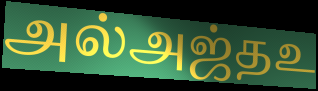
அல்அஜ்தஉ